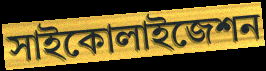
সাইকোলাইজেশন